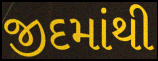
જીદમાંથી